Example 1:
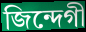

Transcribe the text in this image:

জিন্দেগী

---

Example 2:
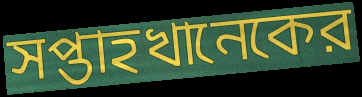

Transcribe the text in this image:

সপ্তাহখানেকের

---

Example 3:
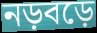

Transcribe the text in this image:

নড়বড়ে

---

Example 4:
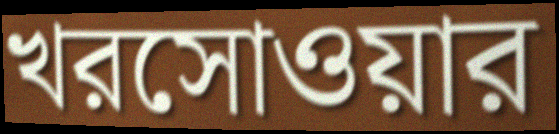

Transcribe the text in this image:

খরসোওয়ার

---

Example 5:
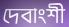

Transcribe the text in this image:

দেবাংশী